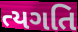
ત્યગતિ